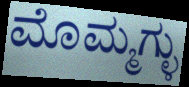
ಮೊಮ್ಮಗ್ಳು